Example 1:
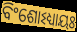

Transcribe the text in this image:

ବିଂଶୋଽଧ୍ୟାୟଃ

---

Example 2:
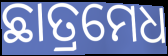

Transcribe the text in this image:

ଛାତ୍ରମେଧ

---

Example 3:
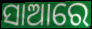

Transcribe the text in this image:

ସାଆରେ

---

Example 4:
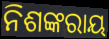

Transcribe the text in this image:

ନିଶଙ୍କରାୟ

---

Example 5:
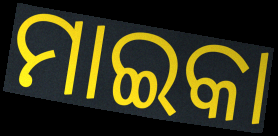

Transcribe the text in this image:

ମାଇକା